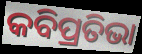
କବିପ୍ରତିଭା